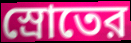
স্রোতের